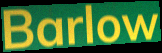
Barlow